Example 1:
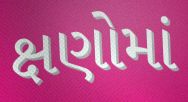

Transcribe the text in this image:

ક્ષણોમાં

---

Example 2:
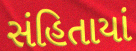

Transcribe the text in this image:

સંહિતાયાં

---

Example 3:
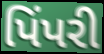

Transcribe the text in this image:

પિંપરી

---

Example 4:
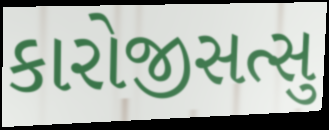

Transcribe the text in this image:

કારોજીસત્સુ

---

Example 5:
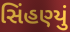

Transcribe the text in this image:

સિંહણ્યું